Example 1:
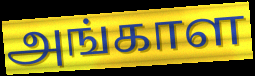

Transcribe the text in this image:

அங்காள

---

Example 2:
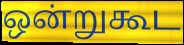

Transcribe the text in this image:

ஒன்றுகூட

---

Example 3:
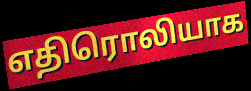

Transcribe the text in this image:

எதிரொலியாக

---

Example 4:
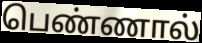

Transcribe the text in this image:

பெண்ணால்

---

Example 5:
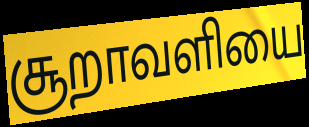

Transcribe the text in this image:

சூறாவளியை